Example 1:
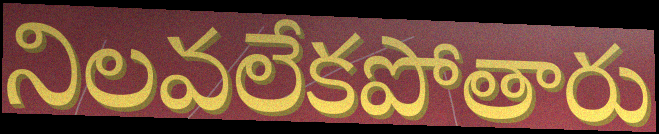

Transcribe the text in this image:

నిలవలేకపోతారు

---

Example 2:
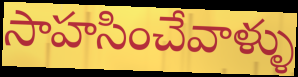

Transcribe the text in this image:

సాహసించేవాళ్ళు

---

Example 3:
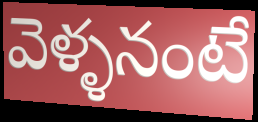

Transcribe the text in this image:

వెళ్ళనంటే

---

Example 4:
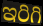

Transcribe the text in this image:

ఇరిగి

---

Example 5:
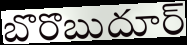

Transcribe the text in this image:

బొరొబుదూర్